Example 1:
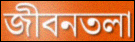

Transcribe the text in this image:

জীবনতলা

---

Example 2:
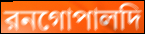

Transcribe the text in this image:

রনগোপালদি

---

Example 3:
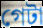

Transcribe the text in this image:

গেটা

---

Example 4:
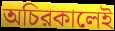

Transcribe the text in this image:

অচিরকালেই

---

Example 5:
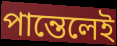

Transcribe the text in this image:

পান্তেলেই